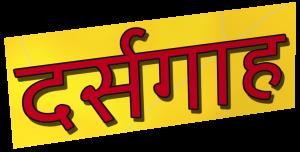
दर्सगाह